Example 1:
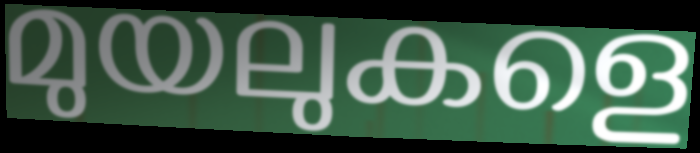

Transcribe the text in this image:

മുയലുകളെ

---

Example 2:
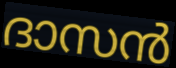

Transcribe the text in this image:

ദാസൻ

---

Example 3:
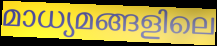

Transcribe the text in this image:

മാധ്യമങ്ങളിലെ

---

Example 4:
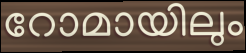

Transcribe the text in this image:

റോമായിലും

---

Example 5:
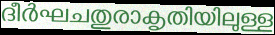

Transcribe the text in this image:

ദീർഘചതുരാകൃതിയിലുള്ള